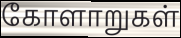
கோளாறுகள்